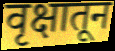
वृक्षातून